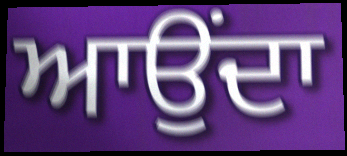
ਆਉਂਦਾ